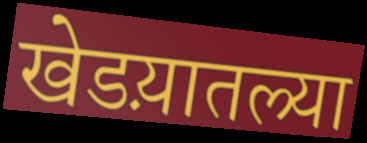
खेडय़ातल्या